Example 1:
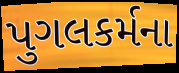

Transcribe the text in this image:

પુગલકર્મના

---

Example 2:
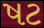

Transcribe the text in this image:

ષટ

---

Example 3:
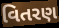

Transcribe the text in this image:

વિતરણ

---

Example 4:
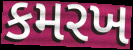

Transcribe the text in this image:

કમરખ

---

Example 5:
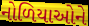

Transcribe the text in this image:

નોળિયાઓને